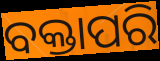
ବକ୍ତାପରି